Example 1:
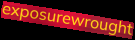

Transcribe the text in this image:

exposurewrought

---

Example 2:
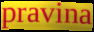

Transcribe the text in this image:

pravina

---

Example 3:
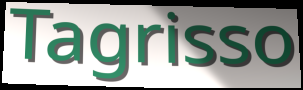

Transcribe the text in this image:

Tagrisso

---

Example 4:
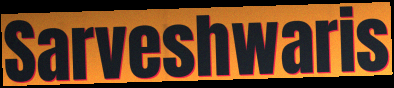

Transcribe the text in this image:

Sarveshwaris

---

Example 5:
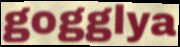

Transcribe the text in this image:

gogglya